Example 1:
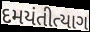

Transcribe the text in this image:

દમયંતીત્યાગ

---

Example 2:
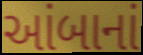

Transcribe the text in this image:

આંબાનાં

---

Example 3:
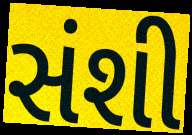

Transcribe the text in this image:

સંશી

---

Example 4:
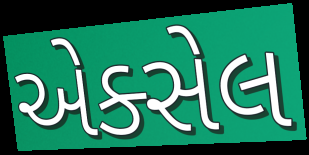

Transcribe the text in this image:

એક્સેલ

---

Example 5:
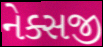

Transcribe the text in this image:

નેક્સજી